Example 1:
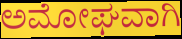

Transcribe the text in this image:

ಅಮೋಘವಾಗಿ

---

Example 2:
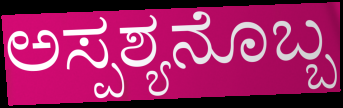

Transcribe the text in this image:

ಅಸ್ಪಶ್ಯನೊಬ್ಬ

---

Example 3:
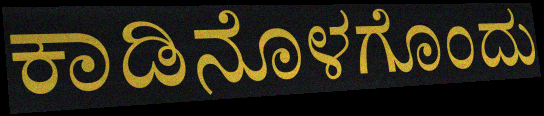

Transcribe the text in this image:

ಕಾಡಿನೊಳಗೊಂದು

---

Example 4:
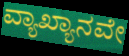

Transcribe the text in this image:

ವ್ಯಾಖ್ಯಾನವೇ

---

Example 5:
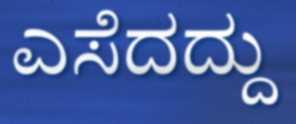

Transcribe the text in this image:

ಎಸೆದದ್ದು